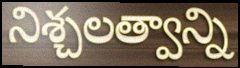
నిశ్చలత్వాన్ని